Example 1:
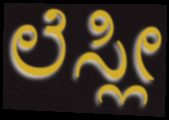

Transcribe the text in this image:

ಲೆಸ್ಲೀ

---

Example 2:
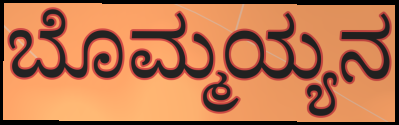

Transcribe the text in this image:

ಬೊಮ್ಮಯ್ಯನ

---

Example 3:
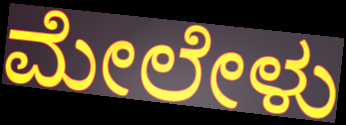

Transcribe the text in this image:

ಮೇಲೇಳು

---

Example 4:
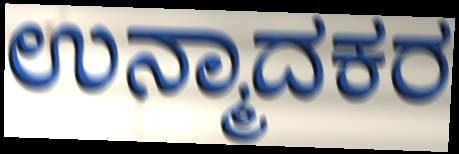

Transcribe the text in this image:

ಉನ್ಮಾದಕರ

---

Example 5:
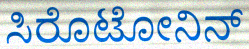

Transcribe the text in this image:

ಸಿರೊಟೋನಿನ್